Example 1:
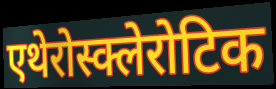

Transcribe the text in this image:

एथेरोस्क्लेरोटिक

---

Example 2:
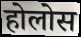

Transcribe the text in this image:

होलोस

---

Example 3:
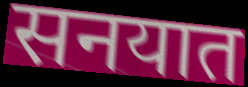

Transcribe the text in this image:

सनयात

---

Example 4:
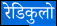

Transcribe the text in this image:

रेडिकुलो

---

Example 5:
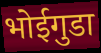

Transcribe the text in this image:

भोईगुडा